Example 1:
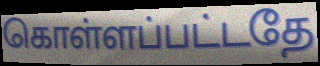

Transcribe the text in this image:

கொள்ளப்பட்டதே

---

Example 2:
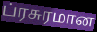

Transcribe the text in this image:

ப்ரசுரமான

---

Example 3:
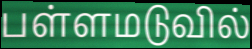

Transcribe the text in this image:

பள்ளமடுவில்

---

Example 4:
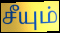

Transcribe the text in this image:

சீயும்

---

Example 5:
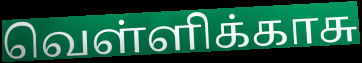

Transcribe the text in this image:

வெள்ளிக்காசு